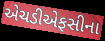
એચડીએફસીના